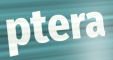
ptera